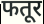
फतूर